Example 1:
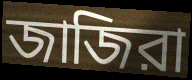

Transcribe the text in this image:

জাজিরা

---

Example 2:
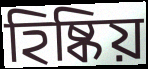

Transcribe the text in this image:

হিষ্কিয়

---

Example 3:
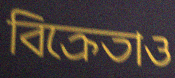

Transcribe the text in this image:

বিক্রেতাও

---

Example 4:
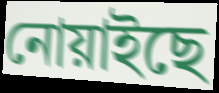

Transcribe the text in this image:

নোয়াইছে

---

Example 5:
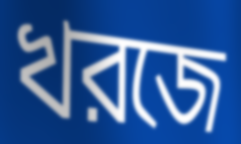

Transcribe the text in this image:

খরজে